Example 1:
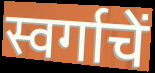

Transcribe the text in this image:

स्वर्गाचें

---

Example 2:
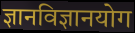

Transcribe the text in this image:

ज्ञानविज्ञानयोग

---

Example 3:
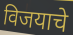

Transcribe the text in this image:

विजयाचे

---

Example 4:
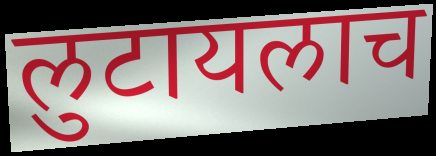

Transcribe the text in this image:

लुटायलाच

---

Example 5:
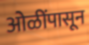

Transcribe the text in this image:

ओळींपासून